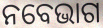
ନବେଭାଗ